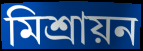
মিশ্রায়ন